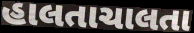
હાલતાચાલતા